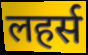
लहर्स